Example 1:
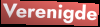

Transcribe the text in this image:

Verenigde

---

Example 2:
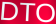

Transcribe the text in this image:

DTO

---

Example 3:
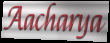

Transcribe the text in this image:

Aacharya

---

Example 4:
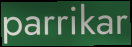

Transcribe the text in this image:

parrikar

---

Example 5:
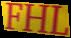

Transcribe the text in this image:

FHL